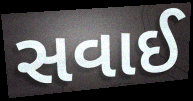
સવાઈ